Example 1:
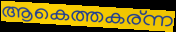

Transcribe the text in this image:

ആകെത്തകര്ന്ന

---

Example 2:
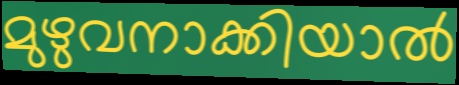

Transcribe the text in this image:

മുഴുവനാക്കിയാൽ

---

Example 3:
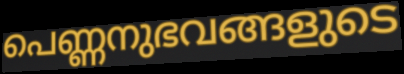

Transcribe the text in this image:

പെണ്ണനുഭവങ്ങളുടെ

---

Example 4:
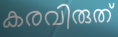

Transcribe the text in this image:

കരവിരുത്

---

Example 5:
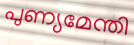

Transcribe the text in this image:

പുണ്യമേന്തി